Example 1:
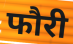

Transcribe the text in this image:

फौरी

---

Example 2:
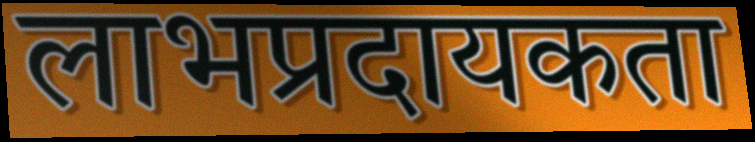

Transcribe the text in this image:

लाभप्रदायकता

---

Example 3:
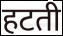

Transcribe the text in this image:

हटती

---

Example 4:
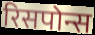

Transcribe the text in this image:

रिसपोन्स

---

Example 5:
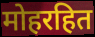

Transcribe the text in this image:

मोहरहित